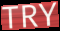
TRY